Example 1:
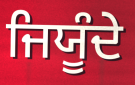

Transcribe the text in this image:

ਜਿਯੂੰਦੇ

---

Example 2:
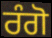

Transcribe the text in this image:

ਰੰਗੋ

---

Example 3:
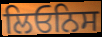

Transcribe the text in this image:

ਲਿਓਨਿਸ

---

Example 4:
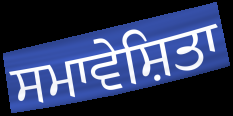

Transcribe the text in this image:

ਸਮਾਵੇਸ਼ਿਤਾ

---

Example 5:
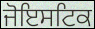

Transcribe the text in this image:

ਜੋਇਸਟਿਕ